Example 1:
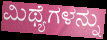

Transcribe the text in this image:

ಮಿಥ್ಯೆಗಳನ್ನು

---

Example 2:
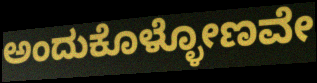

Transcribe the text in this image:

ಅಂದುಕೊಳ್ಳೋಣವೇ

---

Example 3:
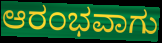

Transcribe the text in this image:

ಆರಂಭವಾಗು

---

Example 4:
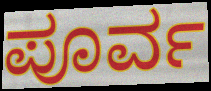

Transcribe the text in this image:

ಪೂರ್ವ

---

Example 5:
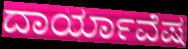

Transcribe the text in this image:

ದಾರ್ಯಾವೆಷ